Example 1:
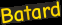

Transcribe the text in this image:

Batard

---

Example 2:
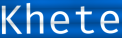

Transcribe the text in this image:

Khete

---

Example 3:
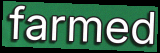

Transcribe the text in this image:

farmed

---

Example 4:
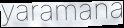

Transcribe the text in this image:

yaramana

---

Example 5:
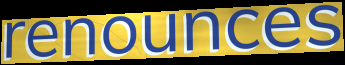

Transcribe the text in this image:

renounces